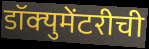
डॉक्युमेंटरीची